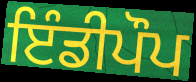
ਇੰਡੀਪੌਪ